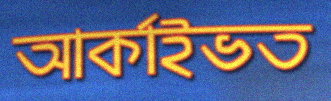
আৰ্কাইভত